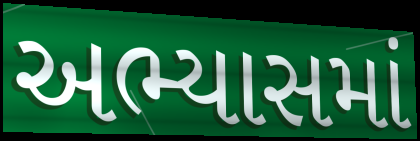
અભ્યાસમાં